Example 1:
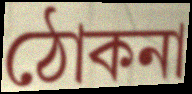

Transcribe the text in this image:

ঠোকনা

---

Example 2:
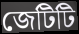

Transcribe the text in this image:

জেটিটি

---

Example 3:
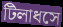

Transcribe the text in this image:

টিলাধসে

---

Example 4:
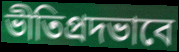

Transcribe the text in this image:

ভীতিপ্রদভাবে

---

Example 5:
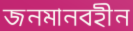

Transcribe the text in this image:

জনমানবহীন